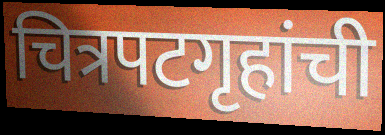
चित्रपटगृहांची